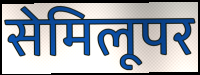
सेमिलूपर